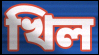
খিল